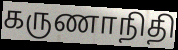
கருணாநிதி